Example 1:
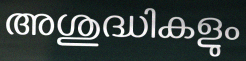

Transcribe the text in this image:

അശുദ്ധികളും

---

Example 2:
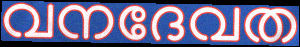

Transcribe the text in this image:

വനദേവത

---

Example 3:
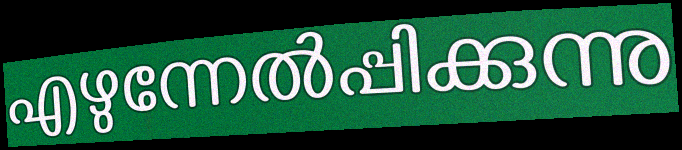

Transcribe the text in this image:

എഴുന്നേൽപ്പിക്കുന്നു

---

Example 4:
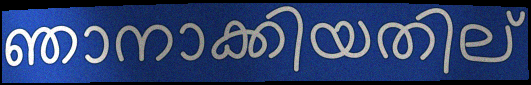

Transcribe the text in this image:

ഞാനാക്കിയതില്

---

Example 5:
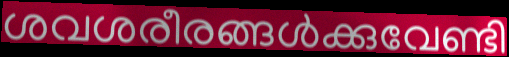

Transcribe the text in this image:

ശവശരീരങ്ങൾക്കുവേണ്ടി